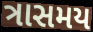
ત્રાસમય